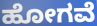
ಹೋಗವೆ